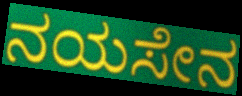
ನಯಸೇನ